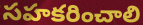
సహకరించాలి